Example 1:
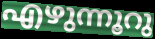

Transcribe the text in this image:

എഴുന്നൂറു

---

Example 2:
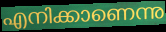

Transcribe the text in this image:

എനിക്കാണെന്നു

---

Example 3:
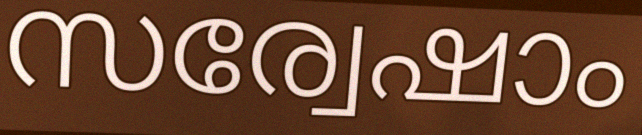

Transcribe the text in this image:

സര്വേഷാം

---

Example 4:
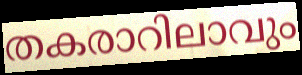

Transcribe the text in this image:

തകരാറിലാവും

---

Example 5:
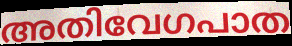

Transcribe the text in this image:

അതിവേഗപാത